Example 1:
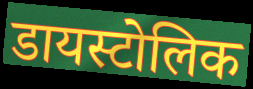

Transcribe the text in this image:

डायस्टोलिक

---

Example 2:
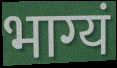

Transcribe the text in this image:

भाग्यं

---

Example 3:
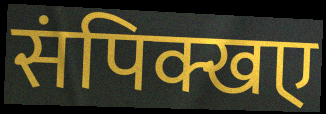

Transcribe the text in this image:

संपिक्खए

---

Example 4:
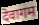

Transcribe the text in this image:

देवागम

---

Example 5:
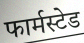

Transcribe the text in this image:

फार्मस्टेड